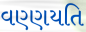
વણ્ણયતિ